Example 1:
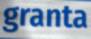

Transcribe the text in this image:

granta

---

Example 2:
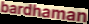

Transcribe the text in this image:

bardhaman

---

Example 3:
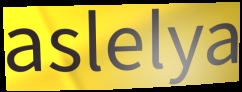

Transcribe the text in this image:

aslelya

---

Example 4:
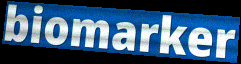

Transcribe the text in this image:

biomarker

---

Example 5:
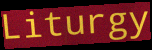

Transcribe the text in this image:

Liturgy